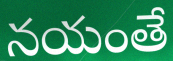
నయంతే